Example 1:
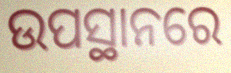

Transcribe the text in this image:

ଉପସ୍ଥାନରେ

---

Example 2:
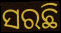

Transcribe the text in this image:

ସରଛି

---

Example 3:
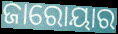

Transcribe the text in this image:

ଜାରୋୟାର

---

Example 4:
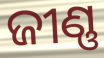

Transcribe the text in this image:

ଜୀଣ୍ଣ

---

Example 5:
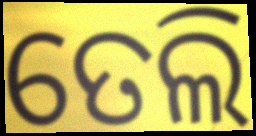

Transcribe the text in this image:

ତେଲି